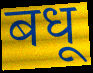
बधू